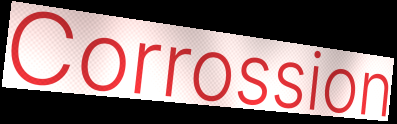
Corrossion